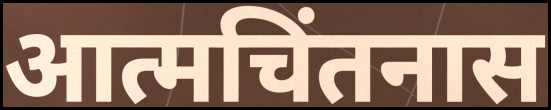
आत्मचिंतनास